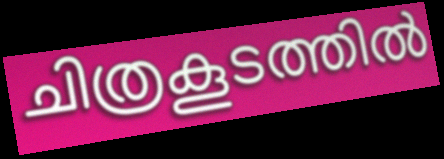
ചിത്രകൂടത്തിൽ